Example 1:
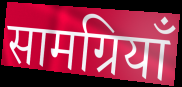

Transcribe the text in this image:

सामग्रियाँ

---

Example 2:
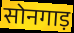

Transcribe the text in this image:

सोनगाड़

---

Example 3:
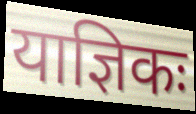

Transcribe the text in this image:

याज्ञिकः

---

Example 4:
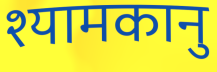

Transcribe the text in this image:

श्यामकानु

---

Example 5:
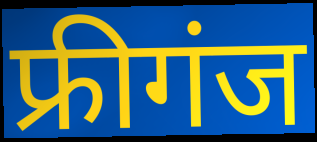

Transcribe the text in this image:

फ्रीगंज